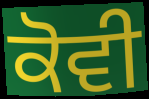
ਕੋਵੀ